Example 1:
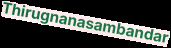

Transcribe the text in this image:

Thirugnanasambandar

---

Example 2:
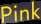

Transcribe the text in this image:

Pink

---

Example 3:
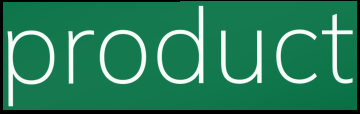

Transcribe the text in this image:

product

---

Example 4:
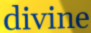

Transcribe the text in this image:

divine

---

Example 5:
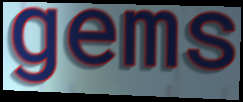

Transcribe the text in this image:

gems